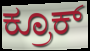
ಕ್ರೂಕ್